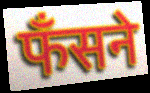
फँसने